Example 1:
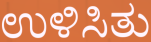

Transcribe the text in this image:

ಉಳಿಸಿತು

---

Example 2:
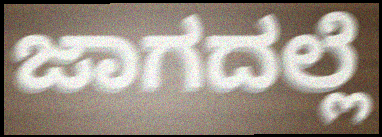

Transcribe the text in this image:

ಜಾಗದಲ್ಲೆ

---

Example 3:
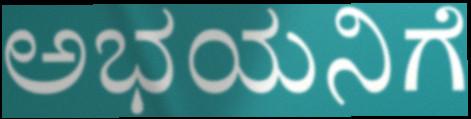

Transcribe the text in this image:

ಅಭಯನಿಗೆ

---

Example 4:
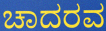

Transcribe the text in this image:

ಚಾದರವ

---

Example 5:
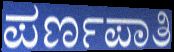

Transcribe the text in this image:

ಪರ್ಣಪಾತಿ